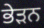
ਭੇੜਨ